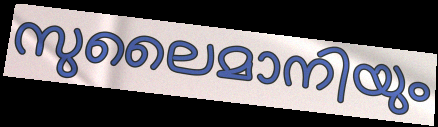
സുലൈമാനിയും